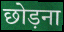
छोड़ना